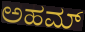
ಅಹಮ್